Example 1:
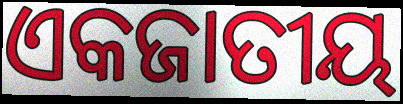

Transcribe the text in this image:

ଏକଜାତୀୟ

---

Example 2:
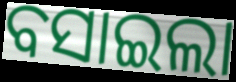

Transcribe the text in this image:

ବସାଇଲା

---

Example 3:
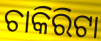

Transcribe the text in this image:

ଚାକିରିଟା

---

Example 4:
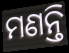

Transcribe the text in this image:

ମଣନ୍ତି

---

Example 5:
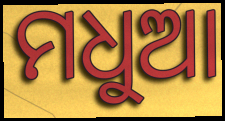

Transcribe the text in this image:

ମଧୁଆ